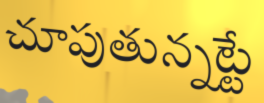
చూపుతున్నట్టే